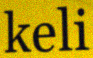
keli